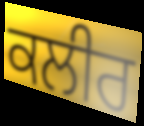
ਕਲੀਰ